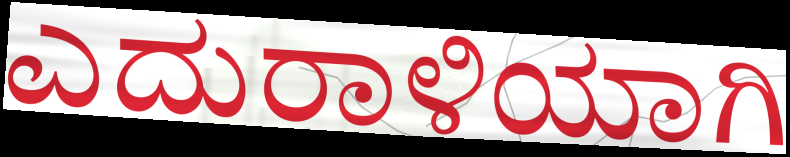
ಎದುರಾಳಿಯಾಗಿ